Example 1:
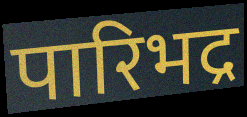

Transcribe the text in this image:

पारिभद्र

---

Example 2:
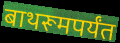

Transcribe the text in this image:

बाथरूमपर्यंत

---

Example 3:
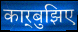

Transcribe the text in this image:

कार्बुझिए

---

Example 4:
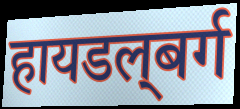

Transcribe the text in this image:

हायडल्‌बर्ग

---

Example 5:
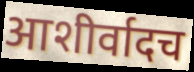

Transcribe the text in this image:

आशीर्वादच